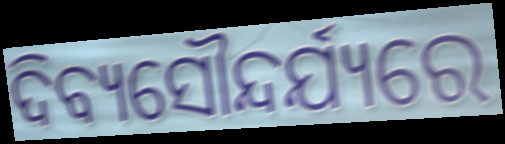
ଦିବ୍ୟସୌନ୍ଦର୍ଯ୍ୟରେ